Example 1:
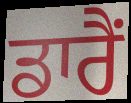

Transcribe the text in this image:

ਡਾਰੈਂ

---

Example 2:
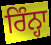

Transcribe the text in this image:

ਰਿੰਨ੍ਹਾ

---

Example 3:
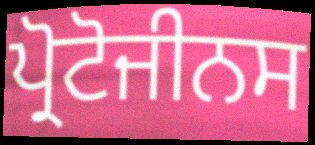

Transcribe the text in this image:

ਪ੍ਰੋਟੋਜੀਨਸ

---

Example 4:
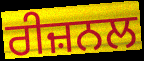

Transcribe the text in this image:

ਰੀਜ਼ਨਲ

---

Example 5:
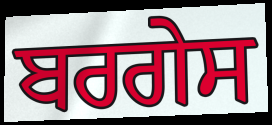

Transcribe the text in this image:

ਬਰਗੇਸ